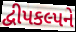
દ્વીપકલ્પને